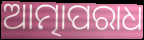
ଆତ୍ମାପରାଧ